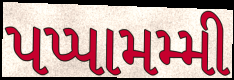
પપ્પામમ્મી